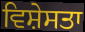
ਵਿਸ਼ੇਸਤਾ